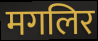
मगलिर